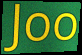
Joo